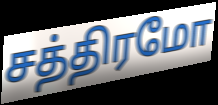
சத்திரமோ